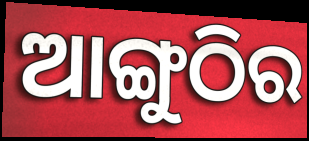
ଆଙ୍ଗୁଠିର